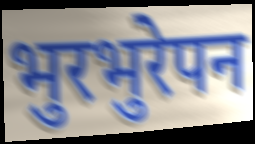
भुरभुरेपन